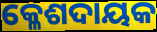
କ୍ଳେଶଦାୟକ